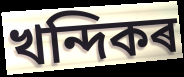
খন্দিকৰ